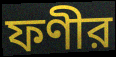
ফণীর